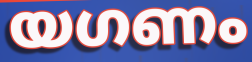
യഗണം